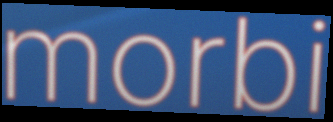
morbi